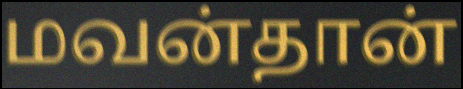
மவன்தான்